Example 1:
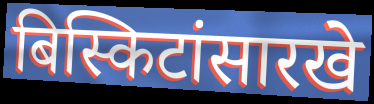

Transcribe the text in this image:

बिस्किटांसारखे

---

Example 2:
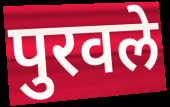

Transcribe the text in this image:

पुरवले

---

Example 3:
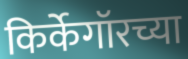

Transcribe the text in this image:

किर्केगॉरच्या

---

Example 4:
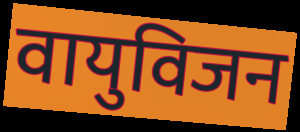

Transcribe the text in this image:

वायुविजन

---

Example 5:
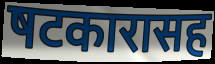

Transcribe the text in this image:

षटकारासह